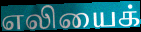
எலியைக்